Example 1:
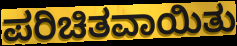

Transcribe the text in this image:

ಪರಿಚಿತವಾಯಿತು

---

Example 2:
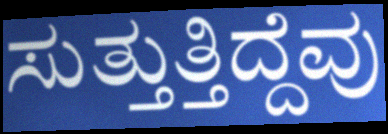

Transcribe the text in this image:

ಸುತ್ತುತ್ತಿದ್ದೆವು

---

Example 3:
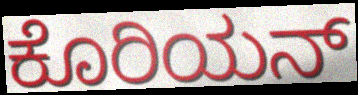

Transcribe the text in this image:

ಕೊರಿಯನ್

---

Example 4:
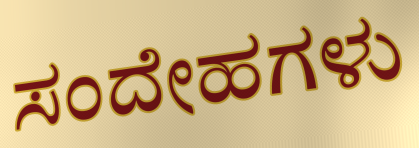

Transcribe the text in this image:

ಸಂದೇಹಗಳು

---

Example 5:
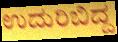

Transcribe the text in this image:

ಉದುರಿಬಿದ್ದ